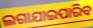
ଲଗାଯାଇପାରିବ